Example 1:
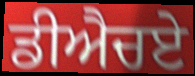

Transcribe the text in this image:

ਡੀਐਚਏ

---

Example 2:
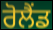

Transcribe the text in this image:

ਰੋਲੈਂਡ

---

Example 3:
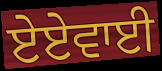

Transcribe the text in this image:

ਏਏਵਾਈ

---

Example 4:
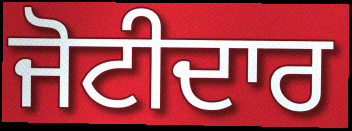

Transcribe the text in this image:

ਜੋਟੀਦਾਰ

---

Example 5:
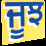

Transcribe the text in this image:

ਜੂਝ